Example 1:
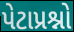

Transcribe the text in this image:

પેટાપ્રશ્નો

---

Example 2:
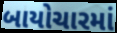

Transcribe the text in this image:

બાયોચારમાં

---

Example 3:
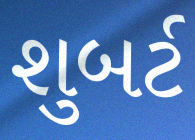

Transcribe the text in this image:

શુબર્ટ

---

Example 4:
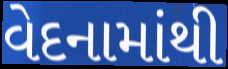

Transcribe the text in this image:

વેદનામાંથી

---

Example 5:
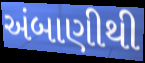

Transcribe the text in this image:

અંબાણીથી